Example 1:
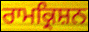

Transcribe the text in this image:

ਰਾਮਕ੍ਰਿਸ਼ਨ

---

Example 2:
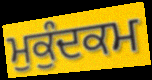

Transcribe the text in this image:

ਮੁਕੁੰਦਕਮ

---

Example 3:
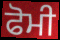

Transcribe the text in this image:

ਫੋਮੀ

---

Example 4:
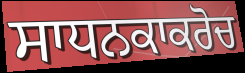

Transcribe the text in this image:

ਸਾਧਨਕਾਕਰੋਚ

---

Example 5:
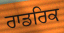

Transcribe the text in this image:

ਰਾਡਰਿਕ